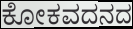
ಕೋಕವದನದ